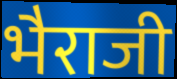
भैराजी